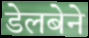
डेलबेने